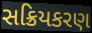
સક્રિયકરણ